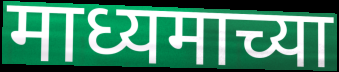
माध्यमाच्या